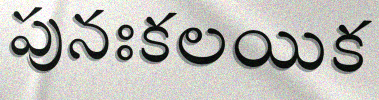
పునఃకలయిక